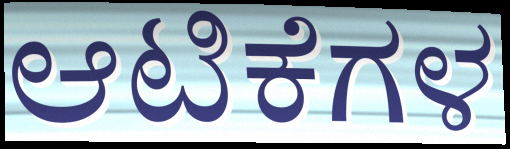
ಆಟಿಕೆಗಳ